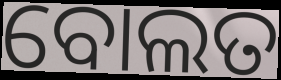
ବୋଲତ